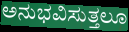
ಅನುಭವಿಸುತ್ತಲೂ